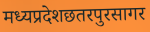
मध्यप्रदेशछतरपुरसागर